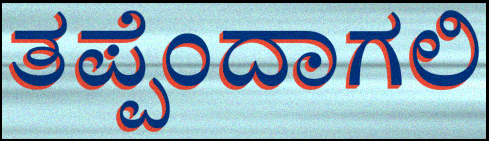
ತಪ್ಪೆಂದಾಗಲಿ